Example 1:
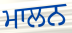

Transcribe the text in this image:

ਮਾਲਨ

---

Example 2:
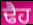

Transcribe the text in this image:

ਢੈਹ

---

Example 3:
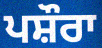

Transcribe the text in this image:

ਪਸ਼ੌਰਾ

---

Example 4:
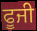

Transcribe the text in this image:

ਫੂਜੀ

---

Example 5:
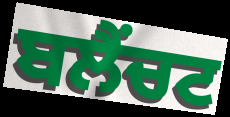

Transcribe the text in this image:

ਬਲੈਂਚਟ